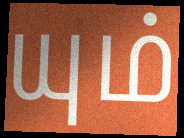
யும்